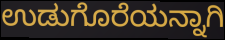
ಉಡುಗೊರೆಯನ್ನಾಗಿ